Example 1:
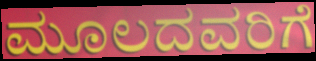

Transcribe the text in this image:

ಮೂಲದವರಿಗೆ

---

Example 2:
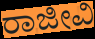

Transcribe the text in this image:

ರಾಜೀವಿ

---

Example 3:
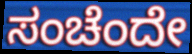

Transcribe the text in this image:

ಸಂಚೆಂದೇ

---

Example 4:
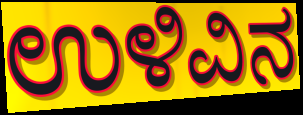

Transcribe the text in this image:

ಉಳಿವಿನ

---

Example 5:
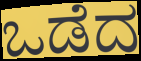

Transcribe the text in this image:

ಒಡೆದ